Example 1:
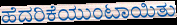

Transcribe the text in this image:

ಹೆದರಿಕೆಯುಂಟಾಯಿತು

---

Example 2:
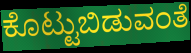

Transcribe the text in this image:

ಕೊಟ್ಟುಬಿಡುವಂತೆ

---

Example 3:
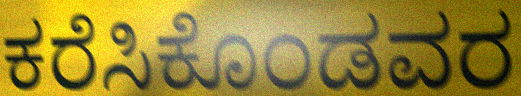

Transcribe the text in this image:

ಕರೆಸಿಕೊಂಡವರ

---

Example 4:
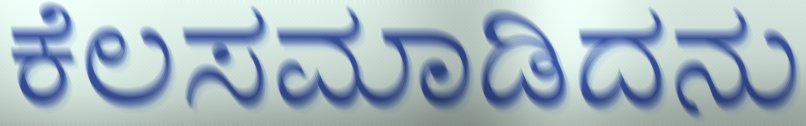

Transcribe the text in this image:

ಕೆಲಸಮಾಡಿದನು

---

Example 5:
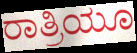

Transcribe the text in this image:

ರಾತ್ರಿಯೂ